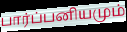
பார்ப்பனியமும்